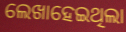
ଲେଖାହେଇଥିଲା